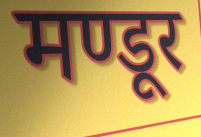
मण्डूर